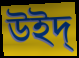
উইদ্